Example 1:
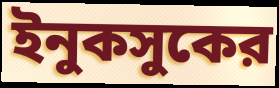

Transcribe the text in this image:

ইনুকসুকের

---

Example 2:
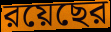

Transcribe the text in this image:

রয়েছের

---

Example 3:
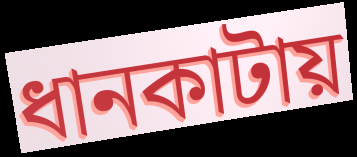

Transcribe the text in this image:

ধানকাটায়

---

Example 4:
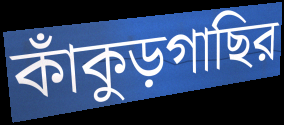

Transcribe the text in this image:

কাঁকুড়গাছির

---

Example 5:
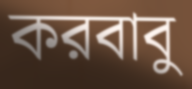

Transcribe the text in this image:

করবাবু